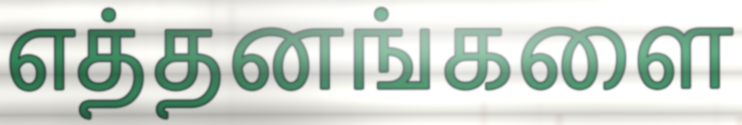
எத்தனங்களை